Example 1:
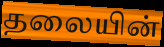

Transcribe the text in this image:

தலையின்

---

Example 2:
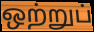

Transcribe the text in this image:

ஒற்றுப்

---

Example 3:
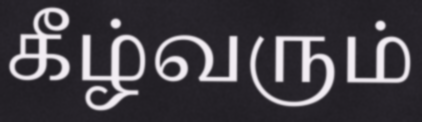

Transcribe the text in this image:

கீழ்வரும்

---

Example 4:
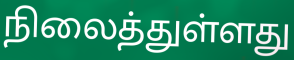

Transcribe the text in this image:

நிலைத்துள்ளது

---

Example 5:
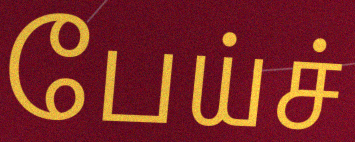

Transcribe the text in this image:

பேய்ச்